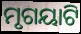
ମୃଗୟାଟି